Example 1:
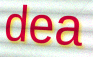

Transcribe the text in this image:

dea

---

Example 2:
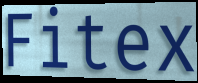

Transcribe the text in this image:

Fitex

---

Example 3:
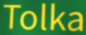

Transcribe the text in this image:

Tolka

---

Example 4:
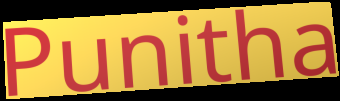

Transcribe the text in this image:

Punitha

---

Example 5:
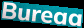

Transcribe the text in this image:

Bureaa